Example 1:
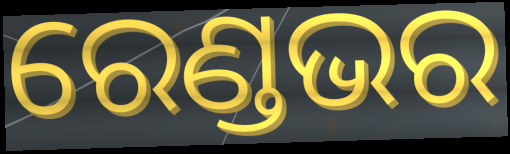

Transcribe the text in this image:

ରେଣ୍ଡଭର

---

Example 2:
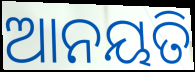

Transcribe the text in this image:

ଆନୟତି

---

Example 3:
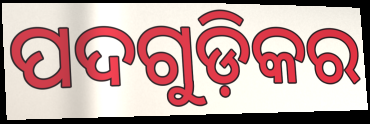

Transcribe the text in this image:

ପଦଗୁଡ଼ିକର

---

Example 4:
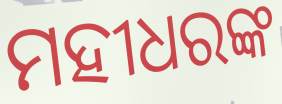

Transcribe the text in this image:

ମହୀଧରଙ୍କ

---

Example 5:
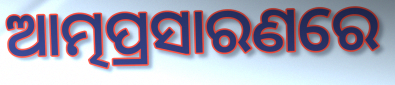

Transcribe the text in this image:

ଆତ୍ମପ୍ରସାରଣରେ